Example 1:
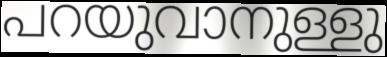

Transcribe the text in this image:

പറയുവാനുള്ളു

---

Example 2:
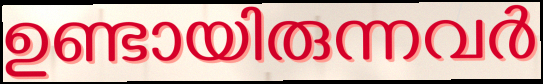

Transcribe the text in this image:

ഉണ്ടായിരുന്നവർ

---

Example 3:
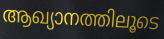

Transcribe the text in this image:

ആഖ്യാനത്തിലൂടെ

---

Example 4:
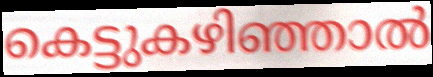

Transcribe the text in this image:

കെട്ടുകഴിഞ്ഞാൽ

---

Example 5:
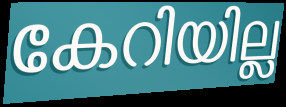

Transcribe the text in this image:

കേറിയില്ല